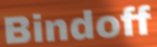
Bindoff